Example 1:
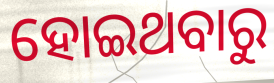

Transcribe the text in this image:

ହୋଇଥବାରୁ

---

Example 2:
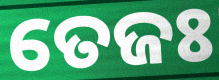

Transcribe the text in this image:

ତେଜଃ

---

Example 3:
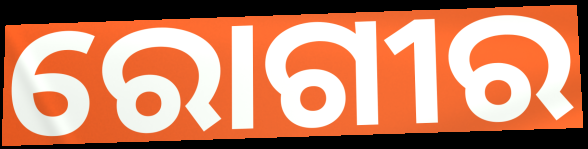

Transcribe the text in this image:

ରୋଗୀର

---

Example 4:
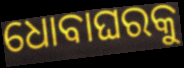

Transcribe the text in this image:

ଧୋବାଘରକୁ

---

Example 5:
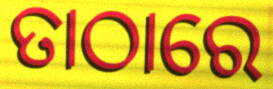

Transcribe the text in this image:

ତାଠାରେ